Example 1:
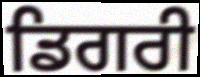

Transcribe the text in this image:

ਡਿਗਰੀ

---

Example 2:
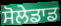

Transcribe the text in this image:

ਸੋਲੇਡਾਡ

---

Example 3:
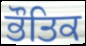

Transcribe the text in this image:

ਭੌਤਿਕ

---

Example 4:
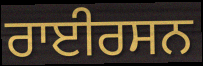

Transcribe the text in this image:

ਰਾਈਰਸਨ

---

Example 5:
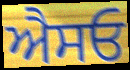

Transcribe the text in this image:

ਐਸਓ